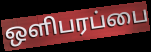
ஒளிபரப்பை